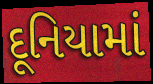
દૂનિયામાં